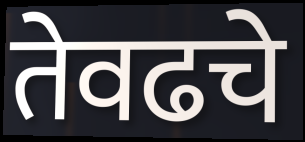
तेवढचे